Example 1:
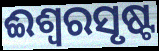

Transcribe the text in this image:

ଈଶ୍ୱରସୃଷ୍ଟ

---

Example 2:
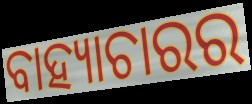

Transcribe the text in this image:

ବାହ୍ୟାଚାରର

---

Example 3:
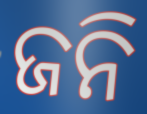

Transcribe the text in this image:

ଜନି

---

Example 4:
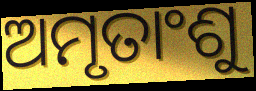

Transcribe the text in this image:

ଅମୃତାଂଶୁ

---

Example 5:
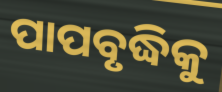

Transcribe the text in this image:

ପାପବୃଦ୍ଧିକୁ